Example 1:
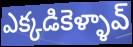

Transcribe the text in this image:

ఎక్కడికెళ్ళావ్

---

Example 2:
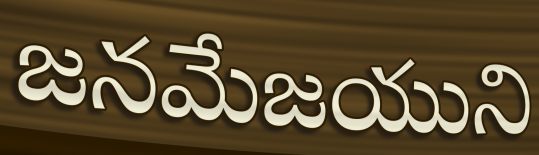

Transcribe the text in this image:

జనమేజయుని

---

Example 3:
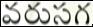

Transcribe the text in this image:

వరుసగ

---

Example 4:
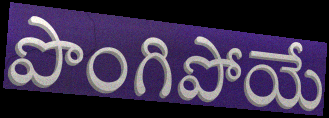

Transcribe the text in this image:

పొంగిపోయే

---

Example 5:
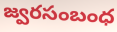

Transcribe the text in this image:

జ్వరసంబంధ